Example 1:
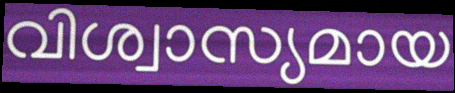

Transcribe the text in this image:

വിശ്വാസ്യമായ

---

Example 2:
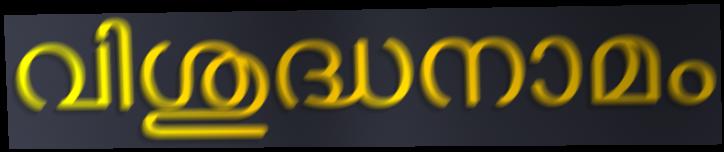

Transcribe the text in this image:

വിശുദ്ധനാമം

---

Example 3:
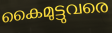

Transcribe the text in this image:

കൈമുട്ടുവരെ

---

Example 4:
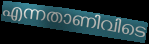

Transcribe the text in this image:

എന്നതാണിവിടെ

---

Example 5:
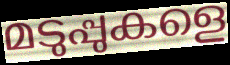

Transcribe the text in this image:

മടുപ്പുകളെ